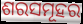
ଶରସମୂହର